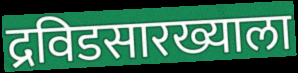
द्रविडसारख्याला